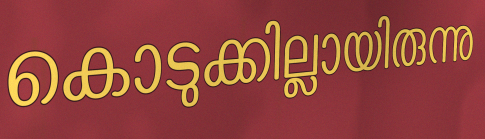
കൊടുക്കില്ലായിരുന്നു